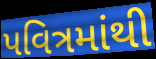
પવિત્રમાંથી